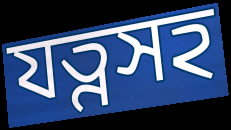
যত্নসহ